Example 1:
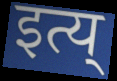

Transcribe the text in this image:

इत्य्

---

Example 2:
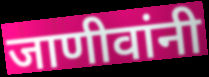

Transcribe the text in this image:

जाणीवांनी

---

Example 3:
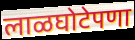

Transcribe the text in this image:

लाळघोटेपणा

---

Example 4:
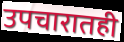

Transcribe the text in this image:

उपचारातही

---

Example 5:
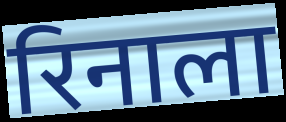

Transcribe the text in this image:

रिनाला